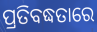
ପ୍ରତିବଦ୍ଧତାରେ